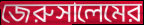
জেরুসালেমের